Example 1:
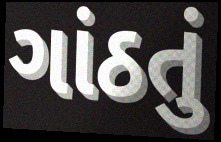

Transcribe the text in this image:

ગાંઠતું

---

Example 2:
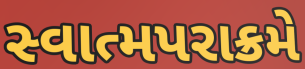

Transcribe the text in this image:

સ્વાત્મપરાક્રમે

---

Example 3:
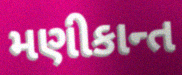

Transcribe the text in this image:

મણીકાન્ત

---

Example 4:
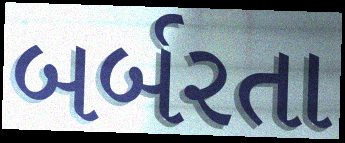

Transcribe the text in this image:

બર્બરતા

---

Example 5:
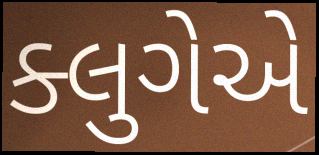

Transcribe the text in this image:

ક્લુગેએ